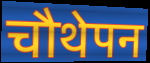
चौथेपन